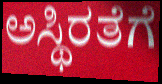
ಅಸ್ಥಿರತೆಗೆ